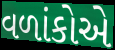
વળાંકોએ